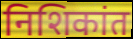
निशिकांत